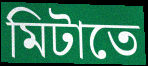
মিটাতে